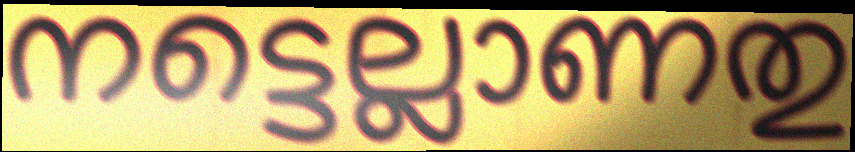
നട്ടെല്ലാണതു